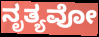
ನೃತ್ಯವೋ